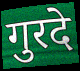
गुरदे